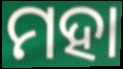
ମହା